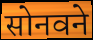
सोनवने